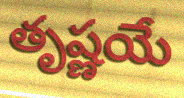
తృష్ణయే